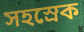
সহস্রেক